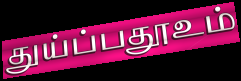
துய்ப்பதூஉம்